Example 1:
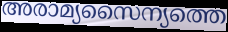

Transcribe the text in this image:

അരാമ്യസൈന്യത്തെ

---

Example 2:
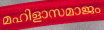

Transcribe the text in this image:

മഹിളാസമാജം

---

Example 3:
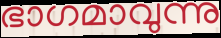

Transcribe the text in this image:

ഭാഗമാവുന്നു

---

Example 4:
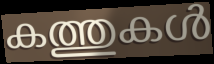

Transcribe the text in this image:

കത്തുകൾ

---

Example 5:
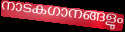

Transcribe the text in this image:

നാടകഗാനങ്ങളും